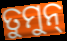
ତୁମୁନ୍